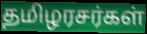
தமிழரசர்கள்